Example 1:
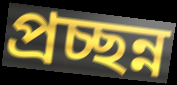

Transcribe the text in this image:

প্রচ্ছন্ন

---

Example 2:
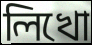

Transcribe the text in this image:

লিখো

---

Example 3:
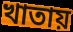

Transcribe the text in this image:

খাতায়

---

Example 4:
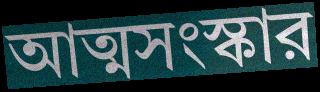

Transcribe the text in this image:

আত্মসংস্কার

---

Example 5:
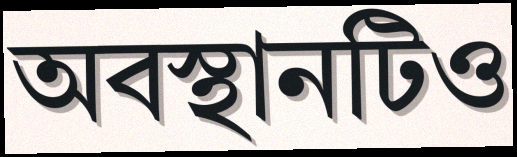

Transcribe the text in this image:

অবস্থানটিও